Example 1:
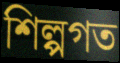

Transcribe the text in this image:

শিল্পগত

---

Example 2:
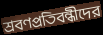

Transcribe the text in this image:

শ্রবণপ্রতিবন্ধীদের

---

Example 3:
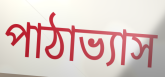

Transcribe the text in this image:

পাঠাভ্যাস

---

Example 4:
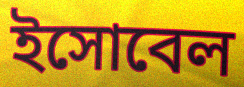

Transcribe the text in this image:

ইসোবেল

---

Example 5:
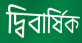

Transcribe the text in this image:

দ্বিবার্ষিক